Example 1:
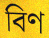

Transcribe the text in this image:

বিণ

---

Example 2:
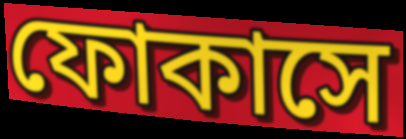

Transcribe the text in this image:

ফোকাসে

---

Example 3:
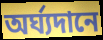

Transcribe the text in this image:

অর্ঘ্যদানে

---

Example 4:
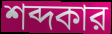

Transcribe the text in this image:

শব্দকার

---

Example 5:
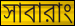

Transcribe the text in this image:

সাবারাং